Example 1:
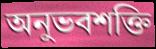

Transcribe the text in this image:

অনুভবশক্তি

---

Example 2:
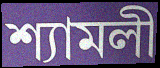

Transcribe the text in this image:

শ্যামলী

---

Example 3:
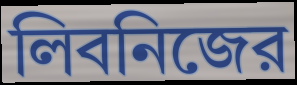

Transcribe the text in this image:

লিবনিজের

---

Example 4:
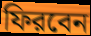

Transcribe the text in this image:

ফিরবেন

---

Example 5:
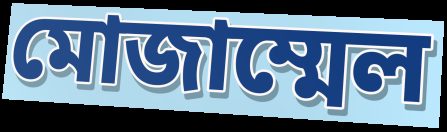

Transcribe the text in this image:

মোজাম্মেল